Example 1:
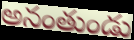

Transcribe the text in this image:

అనంతుండు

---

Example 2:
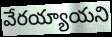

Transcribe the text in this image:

వేరయ్యాయని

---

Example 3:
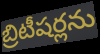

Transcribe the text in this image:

బ్రిటీషర్లను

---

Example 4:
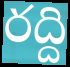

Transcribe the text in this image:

రద్ది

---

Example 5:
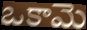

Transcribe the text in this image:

ఒకామె